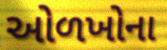
ઓળખોના